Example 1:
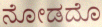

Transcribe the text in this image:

ನೋಡದೊ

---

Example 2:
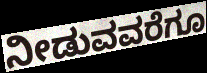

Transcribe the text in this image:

ನೀಡುವವರೆಗೂ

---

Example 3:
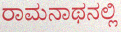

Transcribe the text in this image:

ರಾಮನಾಥನಲ್ಲಿ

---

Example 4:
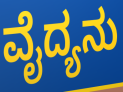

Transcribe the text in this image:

ವೈದ್ಯನು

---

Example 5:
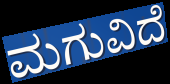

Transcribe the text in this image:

ಮಗುವಿದೆ